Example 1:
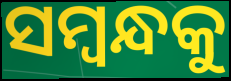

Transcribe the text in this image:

ସମ୍ବନ୍ଧକୁ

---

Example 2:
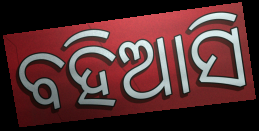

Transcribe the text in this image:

ବହିଆସି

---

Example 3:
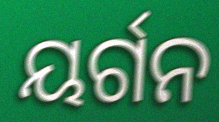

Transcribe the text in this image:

ୟର୍ଗନ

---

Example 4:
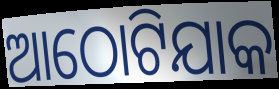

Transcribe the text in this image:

ଆଠୋଟିଯାକ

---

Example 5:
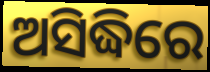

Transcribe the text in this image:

ଅସିଦ୍ଧିରେ